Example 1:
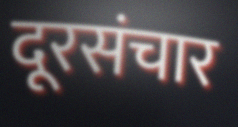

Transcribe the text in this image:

दूरसंचार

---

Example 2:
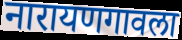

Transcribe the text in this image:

नारायणगावला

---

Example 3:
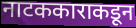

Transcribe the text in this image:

नाटककाराकडून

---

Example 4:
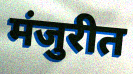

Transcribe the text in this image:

मंजुरीत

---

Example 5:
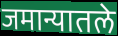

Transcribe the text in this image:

जमान्यातले